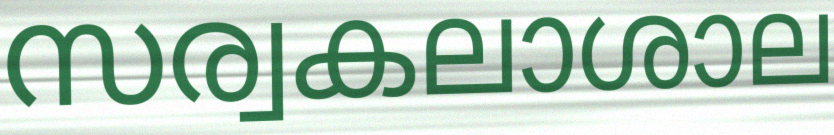
സര്വകലാശാല